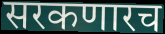
सरकणारच